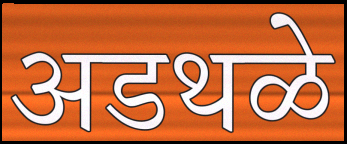
अडथळे